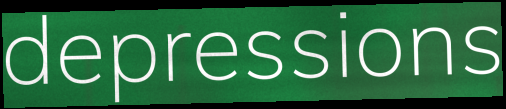
depressions